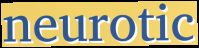
neurotic